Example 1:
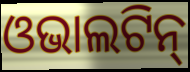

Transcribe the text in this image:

ଓଭାଲଟିନ୍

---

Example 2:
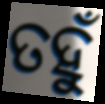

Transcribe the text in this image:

ତହୁଁ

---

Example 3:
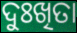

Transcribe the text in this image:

ଦୁଃଖିତା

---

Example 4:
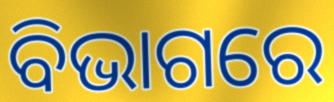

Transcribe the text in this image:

ବିଭାଗରେ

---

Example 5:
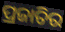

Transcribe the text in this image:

ପ୍ରଜାତିର